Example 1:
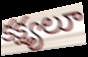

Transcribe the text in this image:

కక్ష్యలూ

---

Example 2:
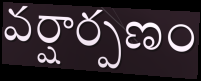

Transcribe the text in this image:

వర్షార్పణం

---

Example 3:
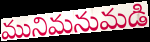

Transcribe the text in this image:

మునిమనుమడి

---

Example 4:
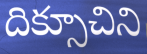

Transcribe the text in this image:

దిక్సూచిని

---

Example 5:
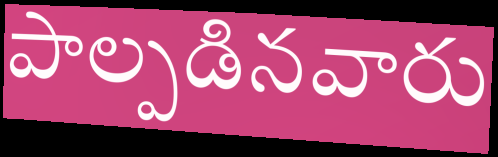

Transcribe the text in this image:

పాల్పడినవారు